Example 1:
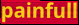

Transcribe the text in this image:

painfull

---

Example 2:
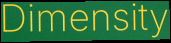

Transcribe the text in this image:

Dimensity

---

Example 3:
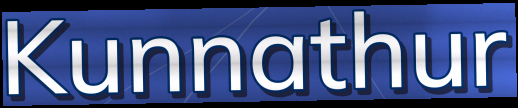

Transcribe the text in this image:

Kunnathur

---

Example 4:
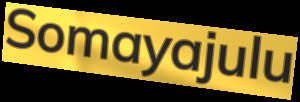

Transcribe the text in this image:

Somayajulu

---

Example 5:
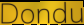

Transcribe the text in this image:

Dondu